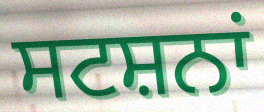
ਸਟਸ਼ਨਾਂ